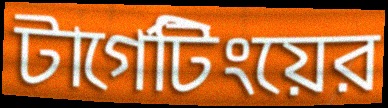
টার্গেটিংয়ের